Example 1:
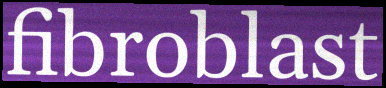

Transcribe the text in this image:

fibroblast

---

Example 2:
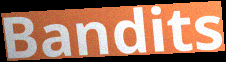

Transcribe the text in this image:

Bandits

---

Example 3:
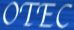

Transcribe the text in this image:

OTEC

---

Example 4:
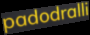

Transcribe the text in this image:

padodralli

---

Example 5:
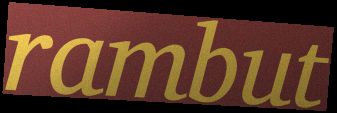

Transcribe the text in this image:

rambut